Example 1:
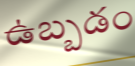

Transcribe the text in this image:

ఉబ్బడం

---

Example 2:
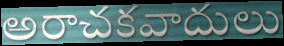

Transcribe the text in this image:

అరాచకవాదులు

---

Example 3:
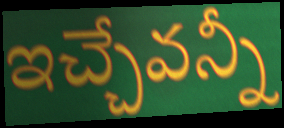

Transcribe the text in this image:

ఇచ్చేవన్నీ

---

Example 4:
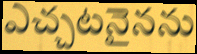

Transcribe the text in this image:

ఎచ్చటనైనను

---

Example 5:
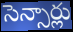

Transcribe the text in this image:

సెన్సార్లు